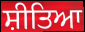
ਸ਼ੀਤਿਆ